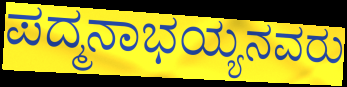
ಪದ್ಮನಾಭಯ್ಯನವರು